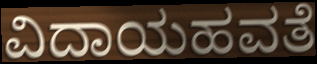
ವಿದಾಯಹವತೆ